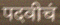
पदवीचं